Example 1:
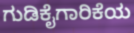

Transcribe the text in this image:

ಗುಡಿಕೈಗಾರಿಕೆಯ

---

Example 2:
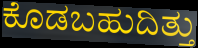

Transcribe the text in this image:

ಕೊಡಬಹುದಿತ್ತು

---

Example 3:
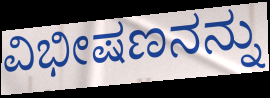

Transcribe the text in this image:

ವಿಭೀಷಣನನ್ನು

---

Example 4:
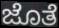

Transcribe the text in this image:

ಜೊತೆ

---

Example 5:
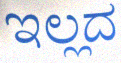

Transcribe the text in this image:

ಇಲ್ಲದ